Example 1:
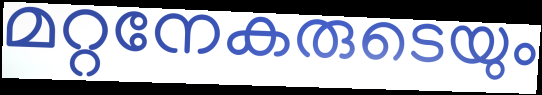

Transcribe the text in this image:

മറ്റനേകരുടെയും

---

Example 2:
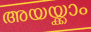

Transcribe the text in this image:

അയയ്ക്കാം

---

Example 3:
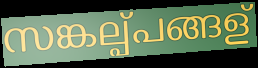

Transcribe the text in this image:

സങ്കല്പ്പങ്ങള്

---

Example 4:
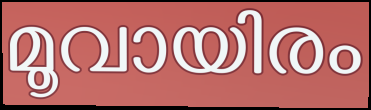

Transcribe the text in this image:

മൂവായിരം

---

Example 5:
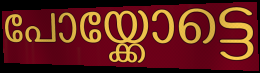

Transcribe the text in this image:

പോയ്ക്കോട്ടെ